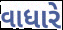
વાધારે